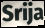
Srija